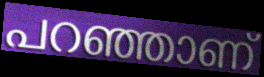
പറഞ്ഞാണ്